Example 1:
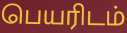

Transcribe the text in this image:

பெயரிடம்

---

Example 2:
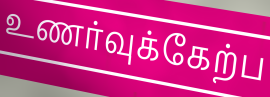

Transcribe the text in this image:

உணர்வுக்கேற்ப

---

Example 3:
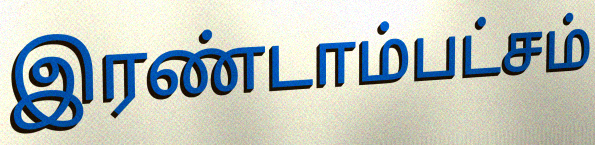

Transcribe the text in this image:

இரண்டாம்பட்சம்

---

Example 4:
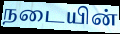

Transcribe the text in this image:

நடையின்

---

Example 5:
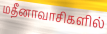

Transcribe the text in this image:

மதீனாவாசிகளில்